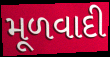
મૂળવાદી